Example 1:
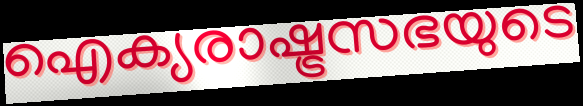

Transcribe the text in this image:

ഐക്യരാഷ്ട്രസഭയുടെ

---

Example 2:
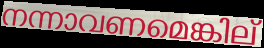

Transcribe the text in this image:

നന്നാവണമെങ്കില്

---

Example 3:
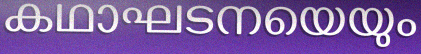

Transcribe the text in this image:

കഥാഘടനയെയും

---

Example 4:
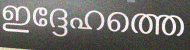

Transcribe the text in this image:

ഇദ്ദേഹത്തെ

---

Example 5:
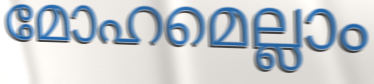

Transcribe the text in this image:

മോഹമെല്ലാം